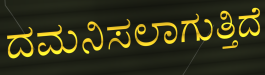
ದಮನಿಸಲಾಗುತ್ತಿದೆ